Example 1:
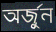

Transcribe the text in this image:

অর্জুন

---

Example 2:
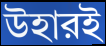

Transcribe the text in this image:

উহারই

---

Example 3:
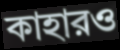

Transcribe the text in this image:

কাহারও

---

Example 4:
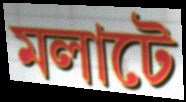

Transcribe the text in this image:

মলাটে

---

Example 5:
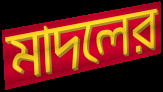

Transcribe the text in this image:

মাদলের